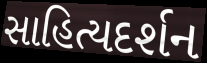
સાહિત્યદર્શન